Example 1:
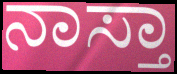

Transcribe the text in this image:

ನಾಸ್ತಾ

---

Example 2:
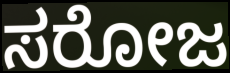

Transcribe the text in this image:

ಸರೋಜ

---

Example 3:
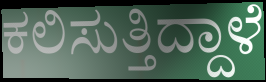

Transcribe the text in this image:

ಕಲಿಸುತ್ತಿದ್ದಾಳೆ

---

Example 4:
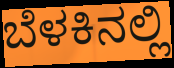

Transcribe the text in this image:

ಬೆಳಕಿನಲ್ಲಿ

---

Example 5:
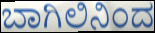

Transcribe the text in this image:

ಬಾಗಿಲಿನಿಂದ